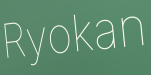
Ryokan